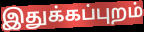
இதுக்கப்புறம்